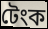
টেংক